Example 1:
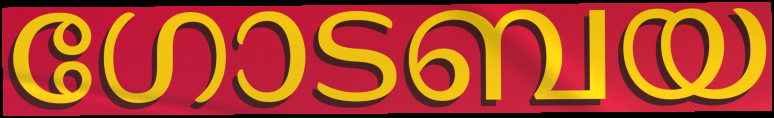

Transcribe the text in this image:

ഗോടബയ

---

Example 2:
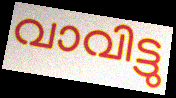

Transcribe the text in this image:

വാവിട്ടു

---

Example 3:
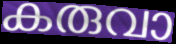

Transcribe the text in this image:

കരുവാ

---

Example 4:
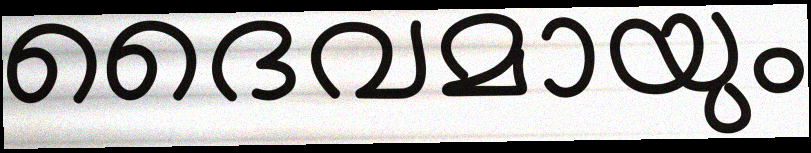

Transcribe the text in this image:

ദൈവമായും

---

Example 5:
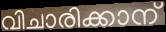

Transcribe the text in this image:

വിചാരിക്കാന്